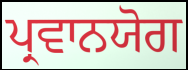
ਪ੍ਰਵਾਨਯੋਗ